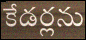
కేడర్లను